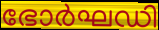
ഭോർഘഡി